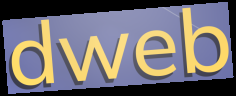
dweb